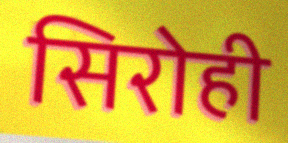
सिरोही